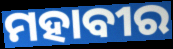
ମହାବୀର